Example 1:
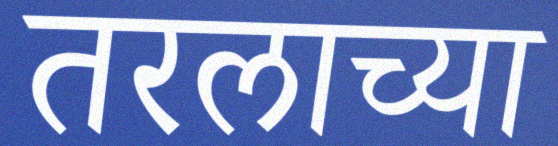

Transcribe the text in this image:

तरलाच्या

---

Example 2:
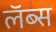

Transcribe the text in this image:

लॅब्स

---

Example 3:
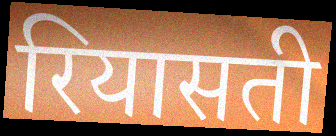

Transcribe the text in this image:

रियासती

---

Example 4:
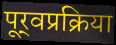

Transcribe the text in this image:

पूर्वप्रक्रिया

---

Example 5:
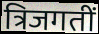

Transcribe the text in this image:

त्रिजगतीं